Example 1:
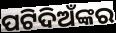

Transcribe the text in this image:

ପଟିଦିଅଁଙ୍କର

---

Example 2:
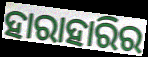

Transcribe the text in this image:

ହାରାହାରିର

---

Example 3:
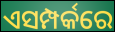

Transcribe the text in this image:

ଏସମ୍ପର୍କରେ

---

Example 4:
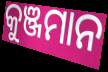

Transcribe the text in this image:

କୁଞ୍ଜମାନ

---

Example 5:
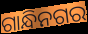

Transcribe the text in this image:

ଗାନ୍ଧିନଗର